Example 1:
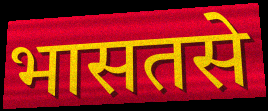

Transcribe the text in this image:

भासतसे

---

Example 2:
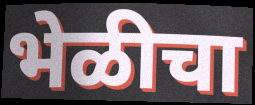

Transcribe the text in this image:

भेळीचा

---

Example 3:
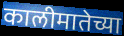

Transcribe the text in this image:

कालीमातेच्या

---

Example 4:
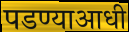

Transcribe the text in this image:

पडण्याआधी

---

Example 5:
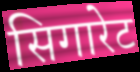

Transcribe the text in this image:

सिगारेट